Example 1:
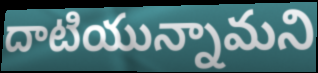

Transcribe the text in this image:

దాటియున్నామని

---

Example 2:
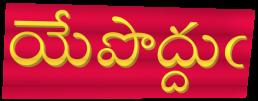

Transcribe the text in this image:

యేపొద్దుఁ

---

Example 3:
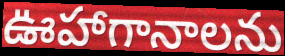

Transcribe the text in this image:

ఊహాగానాలను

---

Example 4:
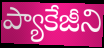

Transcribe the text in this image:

ప్యాకేజీని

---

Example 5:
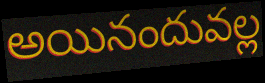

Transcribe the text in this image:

అయినందువల్ల